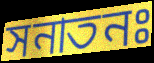
সনাতনঃ